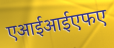
एआईआईएफए